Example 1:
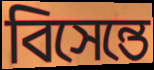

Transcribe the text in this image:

বিসেন্তে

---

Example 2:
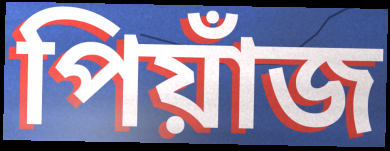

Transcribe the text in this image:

পিয়াঁজ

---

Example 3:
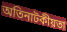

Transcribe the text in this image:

অতিনাটকীয়তা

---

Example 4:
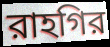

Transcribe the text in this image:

রাহগির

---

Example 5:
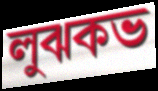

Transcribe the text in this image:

লুঝকভ